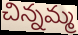
చిన్నమ్మ